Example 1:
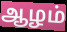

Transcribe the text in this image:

ஆழம்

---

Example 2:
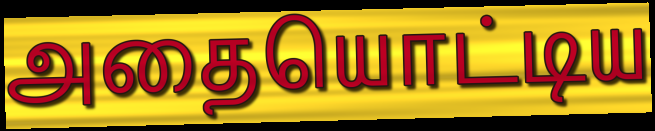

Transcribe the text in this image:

அதையொட்டிய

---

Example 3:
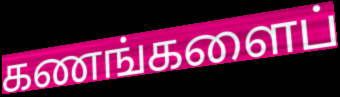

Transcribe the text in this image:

கணங்களைப்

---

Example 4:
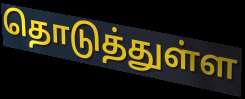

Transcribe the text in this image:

தொடுத்துள்ள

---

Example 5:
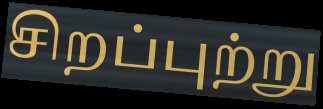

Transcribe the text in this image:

சிறப்புற்று